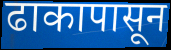
ढाकापासून